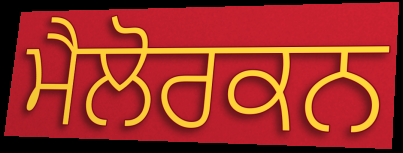
ਮੈਲੋਰਕਨ